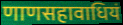
णाणसहावाधियं